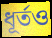
ধূর্তও